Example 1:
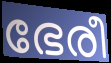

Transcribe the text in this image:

ഭേരീ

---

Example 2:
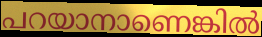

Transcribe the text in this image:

പറയാനാണെങ്കിൽ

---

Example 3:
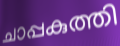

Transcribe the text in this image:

ചാപ്പകുത്തി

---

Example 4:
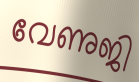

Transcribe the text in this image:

വേണുജി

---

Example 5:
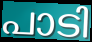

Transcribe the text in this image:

പാടി